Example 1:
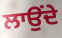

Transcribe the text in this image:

ਲਾਉਂਦੇ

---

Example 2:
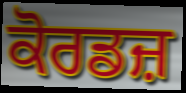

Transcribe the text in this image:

ਕੋਰਡਜ਼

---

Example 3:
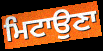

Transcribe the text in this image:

ਮਿਟਾਉਣਾ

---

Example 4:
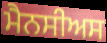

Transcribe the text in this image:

ਮੈਨਸੀਅਸ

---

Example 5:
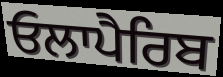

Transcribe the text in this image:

ਓਲਾਪੈਰਿਬ